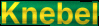
Knebel